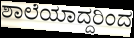
ಶಾಲೆಯಾದ್ದರಿಂದ